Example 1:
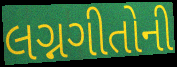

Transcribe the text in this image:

લગ્નગીતોની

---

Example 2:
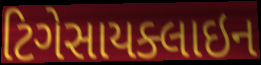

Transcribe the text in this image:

ટિગેસાયક્લાઇન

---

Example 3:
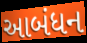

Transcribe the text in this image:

આબંધન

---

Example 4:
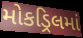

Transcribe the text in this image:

મોકડ્રિલમાં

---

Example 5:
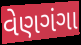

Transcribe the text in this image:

વેણગંગા